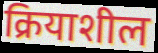
क्रियाशील